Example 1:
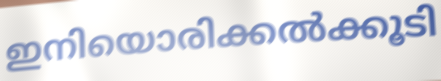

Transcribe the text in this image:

ഇനിയൊരിക്കൽക്കൂടി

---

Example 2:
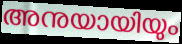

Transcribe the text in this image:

അനുയായിയും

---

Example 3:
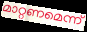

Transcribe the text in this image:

മാറ്റണമെന്ന്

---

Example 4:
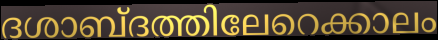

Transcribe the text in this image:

ദശാബ്ദത്തിലേറെക്കാലം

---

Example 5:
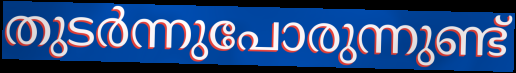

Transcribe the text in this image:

തുടർന്നുപോരുന്നുണ്ട്